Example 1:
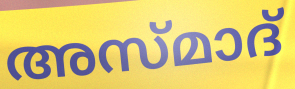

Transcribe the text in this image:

അസ്മാദ്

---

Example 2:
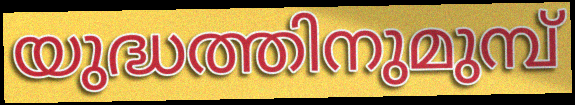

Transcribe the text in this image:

യുദ്ധത്തിനുമുമ്പ്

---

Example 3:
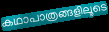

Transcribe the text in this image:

കഥാപാത്രങ്ങളിലൂടെ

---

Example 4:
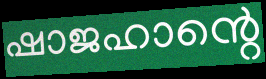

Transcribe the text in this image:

ഷാജഹാന്റെ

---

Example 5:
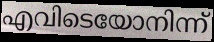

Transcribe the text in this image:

എവിടെയോനിന്ന്